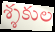
శ్శకుల